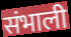
संभाली